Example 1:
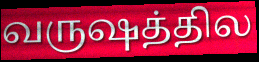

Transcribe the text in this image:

வருஷத்தில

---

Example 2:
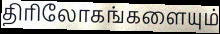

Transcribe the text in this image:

திரிலோகங்களையும்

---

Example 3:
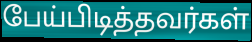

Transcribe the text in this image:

பேய்பிடித்தவர்கள்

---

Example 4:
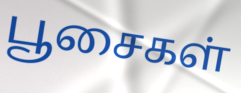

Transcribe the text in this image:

பூசைகள்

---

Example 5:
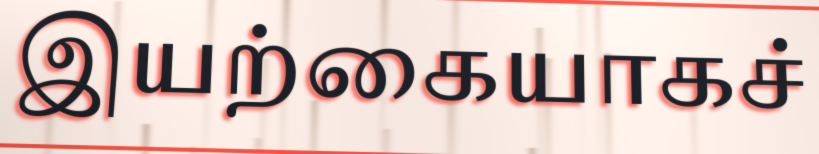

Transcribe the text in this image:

இயற்கையாகச்